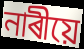
নাৰীয়ে